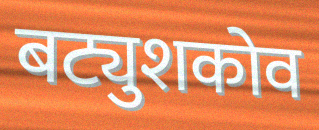
बट्युशकोव